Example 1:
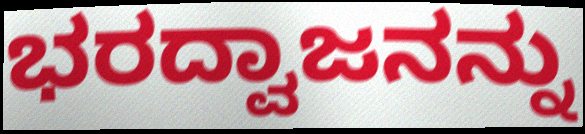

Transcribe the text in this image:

ಭರದ್ವಾಜನನ್ನು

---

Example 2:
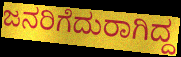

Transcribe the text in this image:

ಜನರಿಗೆದುರಾಗಿದ್ದ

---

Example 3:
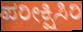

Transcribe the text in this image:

ಪರೀಕ್ಷಿಸಿರಿ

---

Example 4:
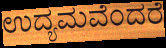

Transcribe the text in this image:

ಉದ್ಯಮವೆಂದರೆ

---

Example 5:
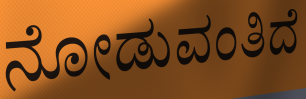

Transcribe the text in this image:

ನೋಡುವಂತಿದೆ